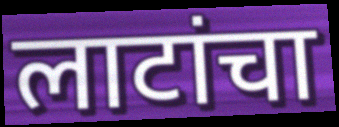
लाटांचा